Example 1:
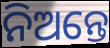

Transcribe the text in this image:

ନିଅନ୍ତେ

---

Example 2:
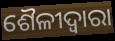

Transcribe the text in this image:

ଶୈଳୀଦ୍ୱାରା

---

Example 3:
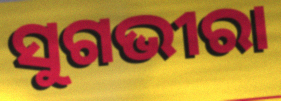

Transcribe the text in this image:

ସୁଗଭୀରା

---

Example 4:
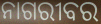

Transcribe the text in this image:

ନାଗରୀବର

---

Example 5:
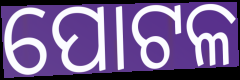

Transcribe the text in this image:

ପୋଟଳ